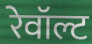
रेवॉल्ट